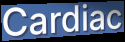
Cardiac